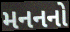
મનનનો